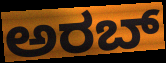
ಅರಬ್